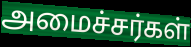
அமைச்சர்கள்